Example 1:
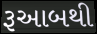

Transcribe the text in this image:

રૂઆબથી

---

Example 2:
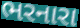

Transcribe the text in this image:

ભરનારા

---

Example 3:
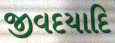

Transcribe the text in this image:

જીવદયાદિ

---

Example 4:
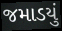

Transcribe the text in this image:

જમાડયું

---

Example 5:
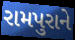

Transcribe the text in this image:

રામપુરાને